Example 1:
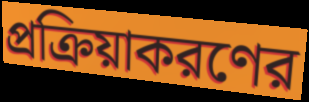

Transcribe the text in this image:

প্রক্রিয়াকরণের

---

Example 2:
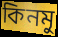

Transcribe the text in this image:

কিনমু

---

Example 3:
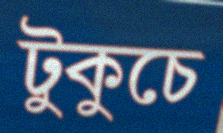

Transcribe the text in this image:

টুকুচে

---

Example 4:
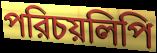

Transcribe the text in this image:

পরিচয়লিপি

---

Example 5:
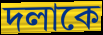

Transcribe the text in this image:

দলাকে